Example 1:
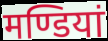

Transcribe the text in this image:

मण्डियां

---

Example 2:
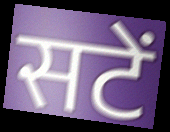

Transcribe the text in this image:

सटें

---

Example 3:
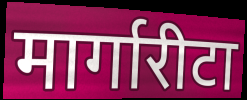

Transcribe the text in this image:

मार्गारीटा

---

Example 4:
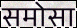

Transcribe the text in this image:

समोसा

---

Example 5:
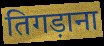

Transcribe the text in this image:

तिगड़ाना